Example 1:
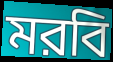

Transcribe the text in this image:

মরবি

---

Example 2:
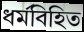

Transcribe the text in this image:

ধর্মবিহিত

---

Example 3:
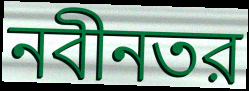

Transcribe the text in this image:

নবীনতর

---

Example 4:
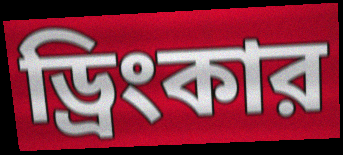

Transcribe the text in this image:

ড্রিংকার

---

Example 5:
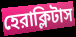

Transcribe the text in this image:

হেরাক্লিটাস